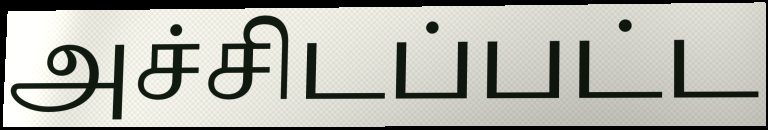
அச்சிடப்பட்ட